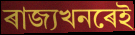
ৰাজ্যখনৰেই